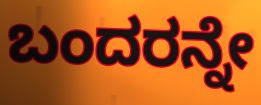
ಬಂದರನ್ನೇ